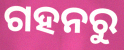
ଗହନରୁ